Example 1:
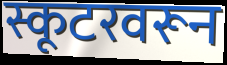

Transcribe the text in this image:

स्कूटरवरून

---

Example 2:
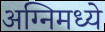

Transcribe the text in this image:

अग्निमध्ये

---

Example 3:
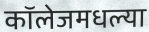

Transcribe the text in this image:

कॉलेजमधल्या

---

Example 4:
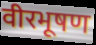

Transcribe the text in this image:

वीरभूषण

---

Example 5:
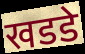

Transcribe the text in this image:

खडडे